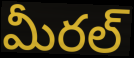
మీరల్